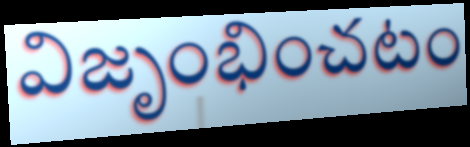
విజృంభించటం